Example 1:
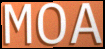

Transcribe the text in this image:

MOA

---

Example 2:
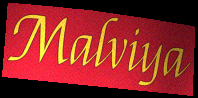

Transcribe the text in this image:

Malviya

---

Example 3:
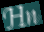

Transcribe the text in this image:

Hn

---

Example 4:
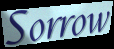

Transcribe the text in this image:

Sorrow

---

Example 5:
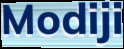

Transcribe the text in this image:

Modiji